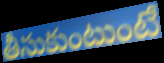
తీసుకుంటుంటే